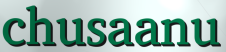
chusaanu